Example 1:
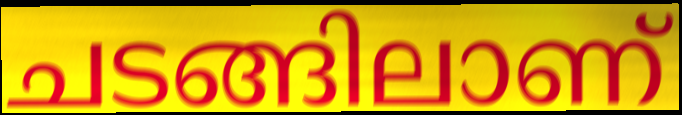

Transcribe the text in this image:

ചടങ്ങിലാണ്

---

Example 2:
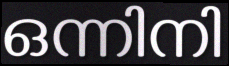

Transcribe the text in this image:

ഒന്നിനി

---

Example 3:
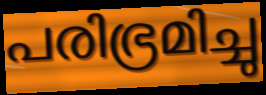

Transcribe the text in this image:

പരിഭ്രമിച്ചു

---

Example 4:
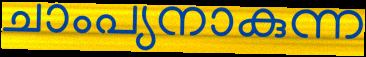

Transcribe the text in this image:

ചാംപ്യനാകുന്ന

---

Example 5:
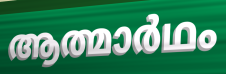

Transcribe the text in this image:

ആത്മാർഥം